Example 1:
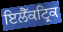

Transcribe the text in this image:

ਇਲੈੱਕਟ੍ਰਿਕ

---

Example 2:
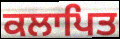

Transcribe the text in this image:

ਕਲਾਪਿਤ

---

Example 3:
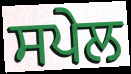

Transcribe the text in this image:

ਸਪੇਲ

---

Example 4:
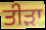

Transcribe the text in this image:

ਤੀੜਾ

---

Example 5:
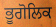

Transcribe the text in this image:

ਭੂਗੋਲਿਕ